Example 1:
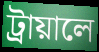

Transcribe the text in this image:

ট্রায়ালে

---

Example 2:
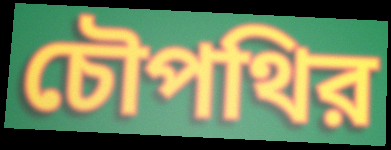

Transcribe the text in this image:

চৌপথির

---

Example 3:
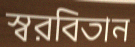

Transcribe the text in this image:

স্বরবিতান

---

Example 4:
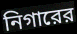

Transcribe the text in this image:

নিগারের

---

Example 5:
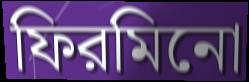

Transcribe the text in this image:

ফিরমিনো